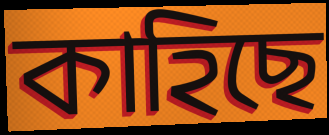
কাহিছে